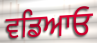
ਵਡਿਆਓ